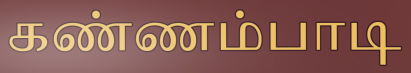
கண்ணம்பாடி